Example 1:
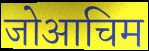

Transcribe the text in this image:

जोआचिम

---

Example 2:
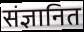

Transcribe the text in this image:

संज्ञानित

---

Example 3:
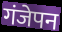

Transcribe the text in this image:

गंजेपन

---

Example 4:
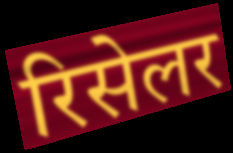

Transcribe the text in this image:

रिसेलर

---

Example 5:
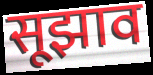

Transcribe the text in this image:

सूझाव